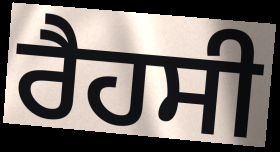
ਰੈਹਸੀ